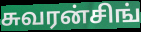
சுவரன்சிங்